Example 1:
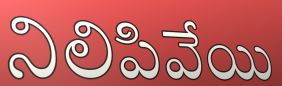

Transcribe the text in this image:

నిలిపివేయి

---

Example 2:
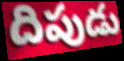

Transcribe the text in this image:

దిపుడు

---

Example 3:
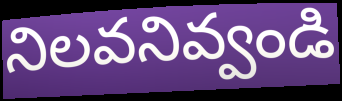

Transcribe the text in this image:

నిలవనివ్వండి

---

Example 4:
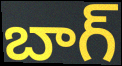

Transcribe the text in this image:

బాగ్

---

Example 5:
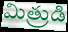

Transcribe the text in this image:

మిత్రుడి